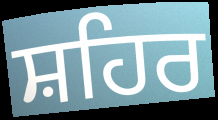
ਸ਼ਹਿਰ